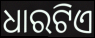
ଧାରଟିଏ